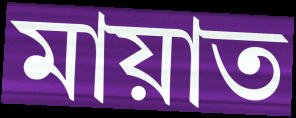
মায়াত